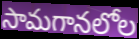
సామగానలోల